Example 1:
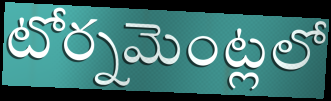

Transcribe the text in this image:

టోర్నమెంట్లలో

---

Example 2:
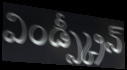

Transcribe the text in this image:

విండ్స్క్రీన్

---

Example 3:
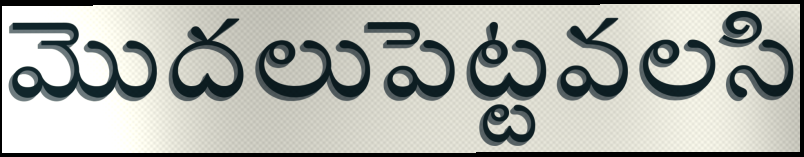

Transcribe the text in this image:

మొదలుపెట్టవలసి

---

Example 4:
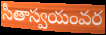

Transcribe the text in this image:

సీతాస్వయంవర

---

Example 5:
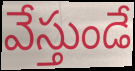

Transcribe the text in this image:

వేస్తుండే